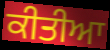
ਕੀਤੀਆ